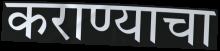
कराण्याचा